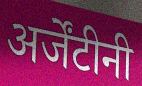
अर्जेंटीनी